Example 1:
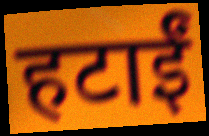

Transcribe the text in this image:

हटाईं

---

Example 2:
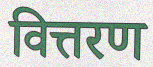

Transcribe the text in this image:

वित्तरण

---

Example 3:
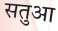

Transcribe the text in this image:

सतुआ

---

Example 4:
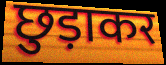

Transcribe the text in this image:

छुड़ाकर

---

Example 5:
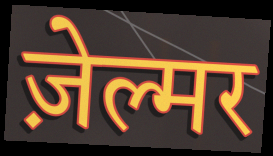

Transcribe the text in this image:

ज़ेल्मर